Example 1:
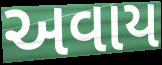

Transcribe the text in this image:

અવાય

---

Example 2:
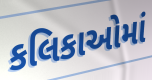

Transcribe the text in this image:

કલિકાઓમાં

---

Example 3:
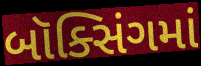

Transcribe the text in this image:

બૉક્સિંગમાં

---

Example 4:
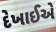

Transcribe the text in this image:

દેખાઈએ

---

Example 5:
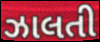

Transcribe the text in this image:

ઝાલતી